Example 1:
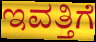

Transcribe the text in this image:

ಇವತ್ತಿಗೆ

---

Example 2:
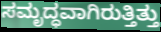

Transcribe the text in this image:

ಸಮೃದ್ಧವಾಗಿರುತ್ತಿತ್ತು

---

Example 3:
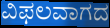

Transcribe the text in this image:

ವಿಫಲವಾಗದ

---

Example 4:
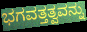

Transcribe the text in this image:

ಭಗವತ್ತತ್ವವನ್ನು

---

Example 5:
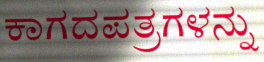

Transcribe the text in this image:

ಕಾಗದಪತ್ರಗಳನ್ನು